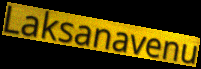
Laksanavenu